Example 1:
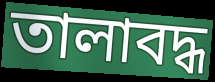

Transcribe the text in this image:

তালাবদ্ধ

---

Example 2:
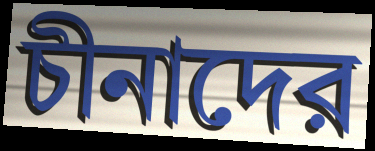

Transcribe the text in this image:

চীনাদের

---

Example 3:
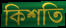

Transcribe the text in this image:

কিশতি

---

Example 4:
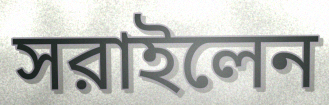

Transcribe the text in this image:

সরাইলেন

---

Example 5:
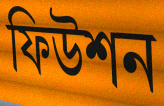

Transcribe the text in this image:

ফিউশন